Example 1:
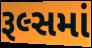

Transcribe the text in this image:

રૂલ્સમાં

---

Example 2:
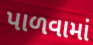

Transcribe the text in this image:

પાળવામાં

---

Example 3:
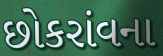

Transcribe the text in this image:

છોકરાંવના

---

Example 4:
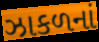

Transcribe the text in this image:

ઝાકળનાં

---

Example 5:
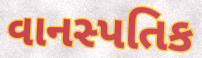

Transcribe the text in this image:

વાનસ્પતિક